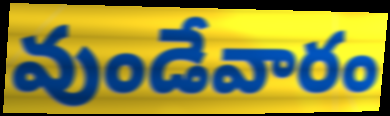
వుండేవారం